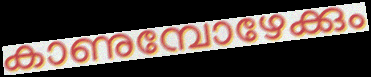
കാണുമ്പോഴേക്കും